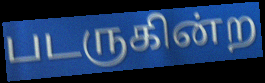
படருகின்ற